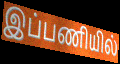
இப்பணியில்